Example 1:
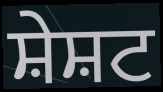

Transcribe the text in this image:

ਸ਼ੇਸ਼ਟ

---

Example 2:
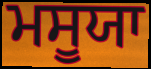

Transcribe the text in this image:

ਮਸੂਯਾ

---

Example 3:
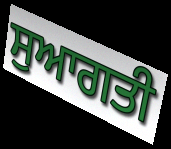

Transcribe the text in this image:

ਸੁਆਗਤੀ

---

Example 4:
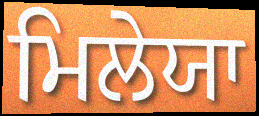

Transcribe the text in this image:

ਮਿਲੇਯਾ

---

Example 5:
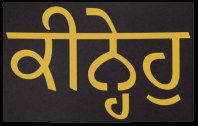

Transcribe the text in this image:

ਕੀਨ੍ਹੇਹੁ